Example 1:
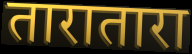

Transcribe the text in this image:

तारातारा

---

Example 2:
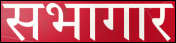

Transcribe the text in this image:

सभागार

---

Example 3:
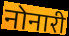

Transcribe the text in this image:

नोनारी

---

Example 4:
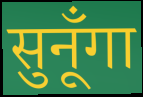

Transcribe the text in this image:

सुनूँगा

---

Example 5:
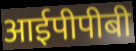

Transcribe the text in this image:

आईपीपीबी